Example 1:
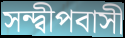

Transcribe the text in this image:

সন্দ্বীপবাসী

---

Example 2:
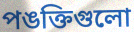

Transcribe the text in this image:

পঙক্তিগুলো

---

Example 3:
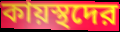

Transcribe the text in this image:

কায়স্থদের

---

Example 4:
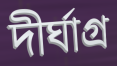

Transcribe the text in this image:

দীর্ঘাগ্র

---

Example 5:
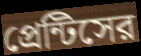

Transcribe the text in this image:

প্রেন্টিসের